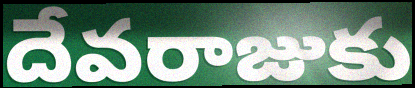
దేవరాజుకు